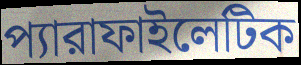
প্যারাফাইলেটিক